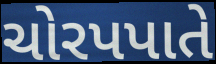
ચોરપપાતે